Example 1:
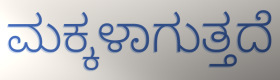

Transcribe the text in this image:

ಮಕ್ಕಳಾಗುತ್ತದೆ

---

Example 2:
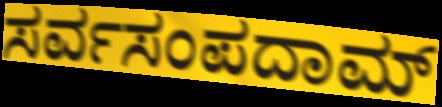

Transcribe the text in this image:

ಸರ್ವಸಂಪದಾಮ್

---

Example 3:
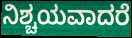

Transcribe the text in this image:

ನಿಶ್ಚಯವಾದರೆ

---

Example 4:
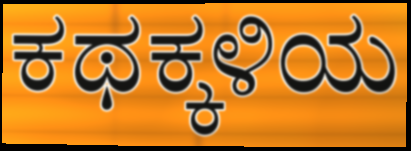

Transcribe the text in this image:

ಕಥಕ್ಕಳಿಯ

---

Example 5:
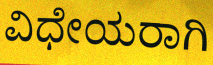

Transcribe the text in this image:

ವಿಧೇಯರಾಗಿ